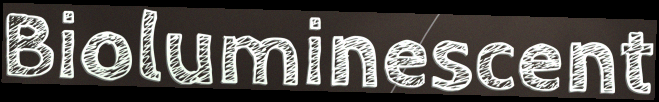
Bioluminescent